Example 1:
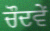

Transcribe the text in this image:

ਚੌਦਵੇਂ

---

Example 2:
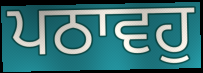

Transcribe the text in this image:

ਪਠਾਵਹੁ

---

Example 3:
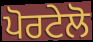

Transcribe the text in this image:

ਪੋਰਟੇਲੋ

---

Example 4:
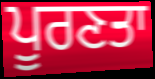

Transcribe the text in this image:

ਪੂਰਣਤਾ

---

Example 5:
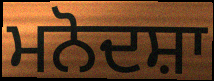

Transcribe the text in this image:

ਮਨੋਦਸ਼ਾ